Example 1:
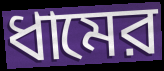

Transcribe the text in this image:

ধামের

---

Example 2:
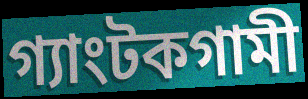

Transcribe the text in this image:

গ্যাংটকগামী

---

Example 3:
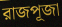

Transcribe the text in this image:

রাজপূজা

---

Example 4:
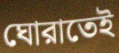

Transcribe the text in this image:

ঘোরাতেই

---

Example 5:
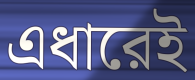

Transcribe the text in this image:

এধারেই